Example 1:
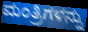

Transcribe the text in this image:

ಮಂತ್ರಿಗಳನ್ನು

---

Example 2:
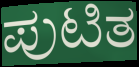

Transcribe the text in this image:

ಪುಟಿತ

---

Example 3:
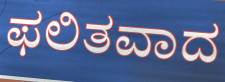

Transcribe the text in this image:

ಫಲಿತವಾದ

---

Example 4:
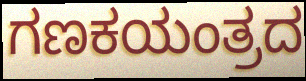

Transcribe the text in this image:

ಗಣಕಯಂತ್ರದ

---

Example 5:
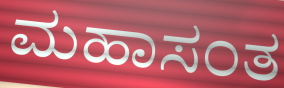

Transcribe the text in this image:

ಮಹಾಸಂತ